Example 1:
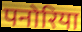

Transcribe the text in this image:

पनोरिया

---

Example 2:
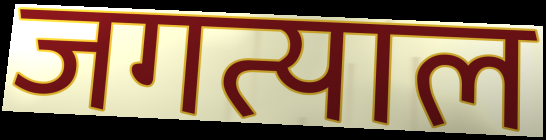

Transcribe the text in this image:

जगत्याल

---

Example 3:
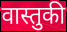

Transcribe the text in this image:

वास्तुकी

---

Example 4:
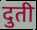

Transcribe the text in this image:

दुती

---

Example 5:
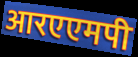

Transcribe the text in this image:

आरएएमपी